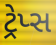
ટ્રેપ્સ